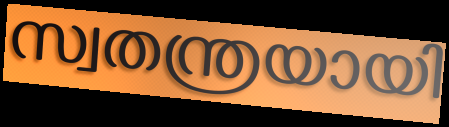
സ്വതന്ത്രയായി